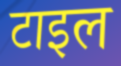
टाइल